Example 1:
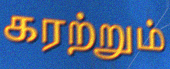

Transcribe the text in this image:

கரற்றும்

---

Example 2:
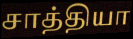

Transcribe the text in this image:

சாத்தியா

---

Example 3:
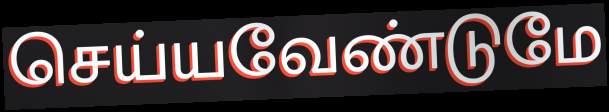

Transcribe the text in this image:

செய்யவேண்டுமே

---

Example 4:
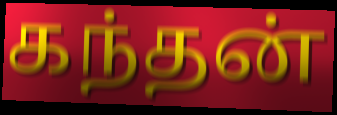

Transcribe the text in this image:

கந்தன்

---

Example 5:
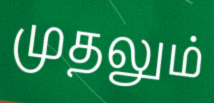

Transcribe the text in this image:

முதலும்